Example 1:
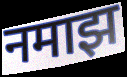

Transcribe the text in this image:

नमाझ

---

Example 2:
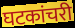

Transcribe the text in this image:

घटकांचरी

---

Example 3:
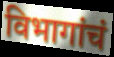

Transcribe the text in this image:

विभागांचं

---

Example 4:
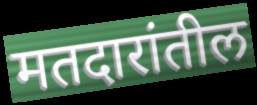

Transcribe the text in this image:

मतदारांतील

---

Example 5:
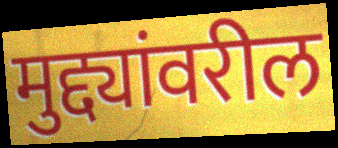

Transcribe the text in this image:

मुद्द्यांवरील